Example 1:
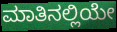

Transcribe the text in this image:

ಮಾತಿನಲ್ಲಿಯೇ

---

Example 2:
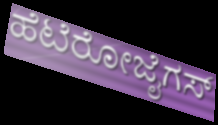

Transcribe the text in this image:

ಹೆಟೆರೋಜೈಗಸ್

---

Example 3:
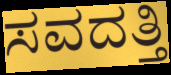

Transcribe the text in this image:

ಸವದತ್ತಿ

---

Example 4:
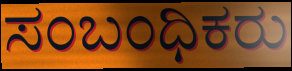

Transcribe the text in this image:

ಸಂಬಂಧಿಕರು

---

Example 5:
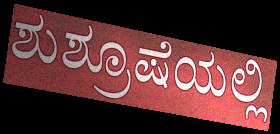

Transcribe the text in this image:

ಶುಶ್ರೂಷೆಯಲ್ಲಿ